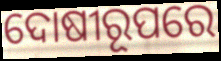
ଦୋଷୀରୂପରେ